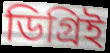
ডিগ্রিই